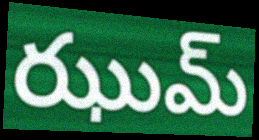
ఝుమ్